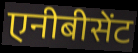
एनीबीसेंट